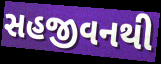
સહજીવનથી